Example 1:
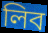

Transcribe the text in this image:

লিব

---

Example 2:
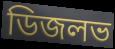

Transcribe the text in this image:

ডিজলভ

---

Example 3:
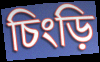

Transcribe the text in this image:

চিংড়ি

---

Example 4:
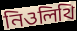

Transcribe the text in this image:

নিওলিথি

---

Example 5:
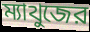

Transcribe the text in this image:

ম্যাথুজের